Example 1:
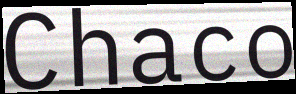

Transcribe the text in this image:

Chaco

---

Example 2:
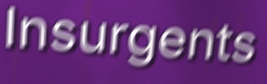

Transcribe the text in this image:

Insurgents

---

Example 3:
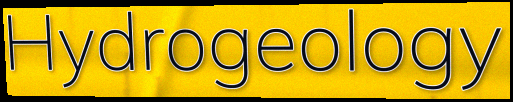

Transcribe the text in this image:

Hydrogeology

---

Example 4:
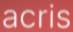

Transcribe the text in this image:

acris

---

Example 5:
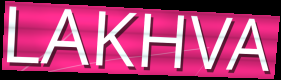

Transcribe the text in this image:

LAKHVA